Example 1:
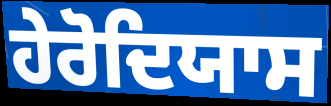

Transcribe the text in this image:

ਹੇਰੋਦਿਯਾਸ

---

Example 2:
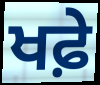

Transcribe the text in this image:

ਖਫ਼ੇ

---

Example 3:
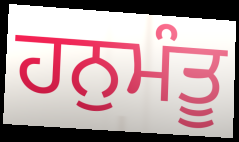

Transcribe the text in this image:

ਹਨੁਮੰਤੂ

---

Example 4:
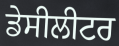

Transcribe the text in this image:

ਡੇਸੀਲੀਟਰ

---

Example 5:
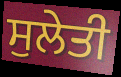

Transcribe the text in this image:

ਸੁਲੇਤੀ